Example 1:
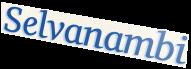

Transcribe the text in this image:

Selvanambi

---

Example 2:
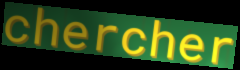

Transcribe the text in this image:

chercher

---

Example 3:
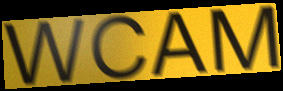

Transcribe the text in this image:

WCAM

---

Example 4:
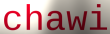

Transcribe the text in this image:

chawi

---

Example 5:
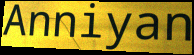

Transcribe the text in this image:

Anniyan